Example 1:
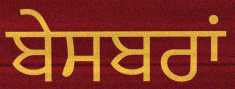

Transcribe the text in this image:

ਬੇਸਬਰਾਂ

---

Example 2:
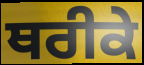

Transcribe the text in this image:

ਥਰੀਕੇ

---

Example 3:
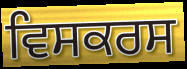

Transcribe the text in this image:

ਵਿਸਕਰਸ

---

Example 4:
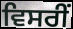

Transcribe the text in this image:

ਵਿਸਰੀਂ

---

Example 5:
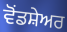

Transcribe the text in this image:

ਵੋਂਡਸ਼ੇਅਰ